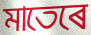
মাতেৰে